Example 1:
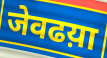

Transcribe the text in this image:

जेवढय़ा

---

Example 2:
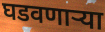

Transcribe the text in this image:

घडवणाऱ्या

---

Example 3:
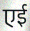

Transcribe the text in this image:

एई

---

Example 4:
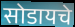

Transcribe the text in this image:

सोडायचे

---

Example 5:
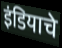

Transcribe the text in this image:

इंडियाचे